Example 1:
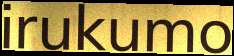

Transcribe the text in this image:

irukumo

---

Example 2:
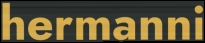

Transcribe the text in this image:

hermanni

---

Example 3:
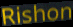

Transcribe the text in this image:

Rishon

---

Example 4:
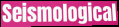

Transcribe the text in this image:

Seismological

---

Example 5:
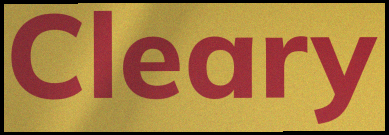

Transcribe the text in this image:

Cleary